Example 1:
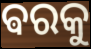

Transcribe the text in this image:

ଵରକୁ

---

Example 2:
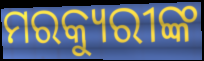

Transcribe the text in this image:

ମରକ୍ୟୁରୀଙ୍କ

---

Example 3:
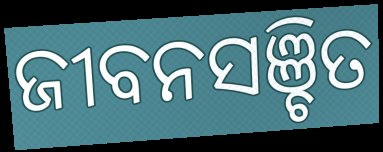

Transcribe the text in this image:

ଜୀବନସଞ୍ଚିତ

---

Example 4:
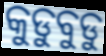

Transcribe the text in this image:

କୁଡୁବୁଡୁ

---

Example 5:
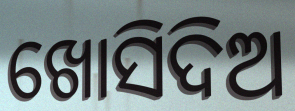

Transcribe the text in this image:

ଖୋସିଦିଅ